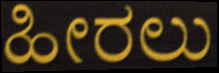
ಹೀರಲು